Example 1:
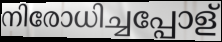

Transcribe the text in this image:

നിരോധിച്ചപ്പോള്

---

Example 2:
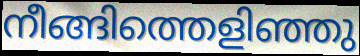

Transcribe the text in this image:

നീങ്ങിത്തെളിഞ്ഞു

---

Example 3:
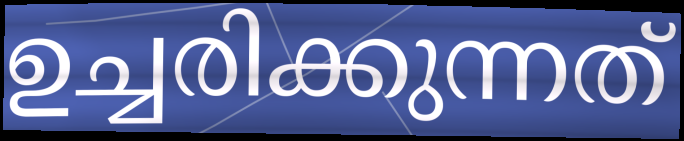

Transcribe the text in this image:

ഉച്ചരിക്കുന്നത്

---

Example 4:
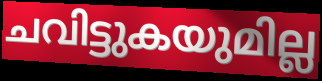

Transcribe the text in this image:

ചവിട്ടുകയുമില്ല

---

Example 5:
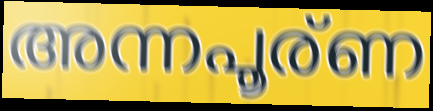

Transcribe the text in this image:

അന്നപൂര്ണ